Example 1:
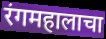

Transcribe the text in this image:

रंगमहालाचा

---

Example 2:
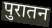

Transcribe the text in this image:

पुरातन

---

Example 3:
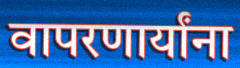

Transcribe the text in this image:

वापरणार्यांना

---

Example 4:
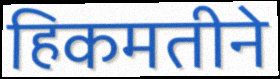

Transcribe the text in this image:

हिकमतीने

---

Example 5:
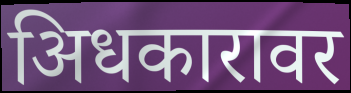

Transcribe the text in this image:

अिधकारावर